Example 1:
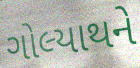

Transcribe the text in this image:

ગોલ્યાથને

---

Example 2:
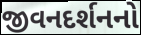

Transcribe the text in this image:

જીવનદર્શનનો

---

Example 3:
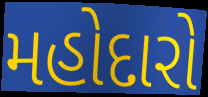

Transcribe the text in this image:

મહોદારો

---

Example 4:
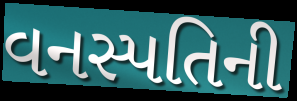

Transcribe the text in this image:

વનસ્પતિની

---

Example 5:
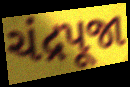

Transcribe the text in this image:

ચંદ્રપૂજા